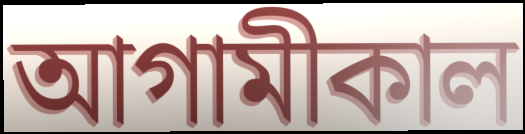
আগামীকাল